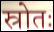
स्रोतः